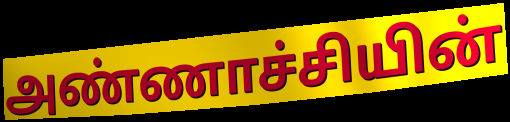
அண்ணாச்சியின்